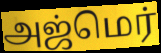
அஜ்மெர்